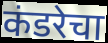
कंडरेचा